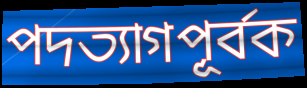
পদত্যাগপূর্বক